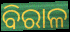
ବିରାଳ